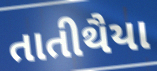
તાતીથૈયા